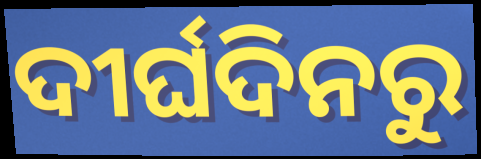
ଦୀର୍ଘଦିନରୁ